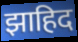
झाहिद